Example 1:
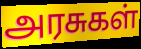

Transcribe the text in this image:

அரசுகள்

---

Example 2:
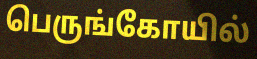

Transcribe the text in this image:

பெருங்கோயில்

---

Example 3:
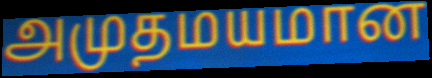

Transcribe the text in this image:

அமுதமயமான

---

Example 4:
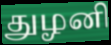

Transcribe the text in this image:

துழனி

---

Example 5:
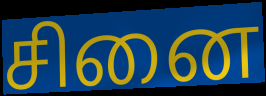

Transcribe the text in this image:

சினை